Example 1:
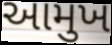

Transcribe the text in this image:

આમુખ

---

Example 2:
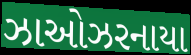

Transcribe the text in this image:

ઝાઓઝરનાયા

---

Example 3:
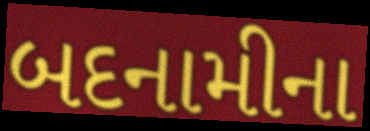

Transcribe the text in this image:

બદનામીના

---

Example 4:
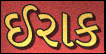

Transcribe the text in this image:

ઈરાક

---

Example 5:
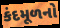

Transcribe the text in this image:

કંદમૂળનો